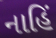
નાહિં